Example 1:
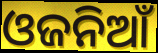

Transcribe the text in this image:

ଓଜନିଆଁ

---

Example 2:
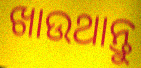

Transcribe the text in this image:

ଖାଉଥାନ୍ତୁ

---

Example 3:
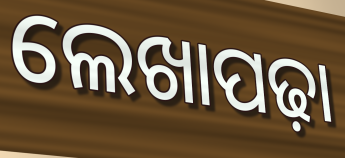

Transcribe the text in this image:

ଲେଖାପଢ଼ା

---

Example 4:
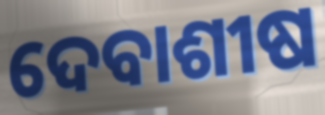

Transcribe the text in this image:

ଦେବାଶୀଷ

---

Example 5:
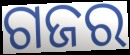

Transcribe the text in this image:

ଗଜର